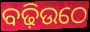
ବଢ଼ିଉଠେ